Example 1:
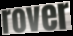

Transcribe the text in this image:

rover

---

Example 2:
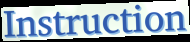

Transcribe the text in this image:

Instruction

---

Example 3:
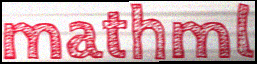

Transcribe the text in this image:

mathml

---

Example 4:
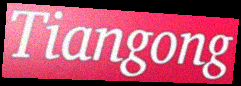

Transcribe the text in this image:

Tiangong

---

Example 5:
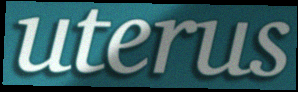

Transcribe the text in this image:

uterus